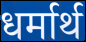
धर्मार्थ